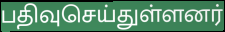
பதிவுசெய்துள்ளனர்